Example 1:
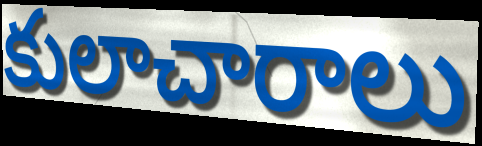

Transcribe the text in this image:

కులాచారాలు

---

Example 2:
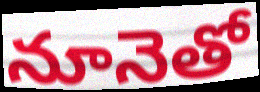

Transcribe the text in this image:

నూనెతో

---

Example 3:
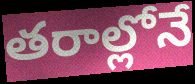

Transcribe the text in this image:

తరాల్లోనే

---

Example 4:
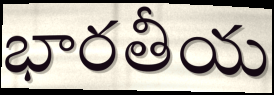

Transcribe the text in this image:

భారతీయ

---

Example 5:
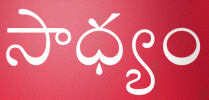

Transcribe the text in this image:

సాధ్యం